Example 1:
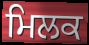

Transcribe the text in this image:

ਮਿਲਕ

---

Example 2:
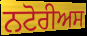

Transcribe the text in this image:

ਨਟੋਰੀਅਸ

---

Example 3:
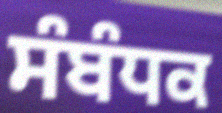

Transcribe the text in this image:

ਸੰਬੰਧਕ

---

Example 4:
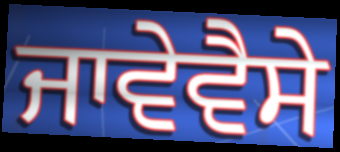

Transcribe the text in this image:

ਜਾਵੇਵੈਸੇ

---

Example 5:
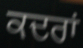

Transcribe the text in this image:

ਕਦਰਾਂ